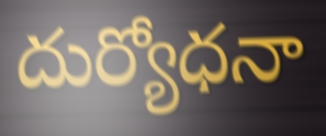
దుర్యోధనా